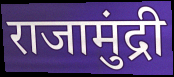
राजामुंद्री